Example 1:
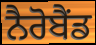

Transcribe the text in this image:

ਨੈਰੋਬੈਂਡ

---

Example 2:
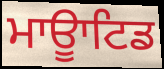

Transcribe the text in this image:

ਮਾਊਾਟਿਡ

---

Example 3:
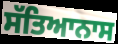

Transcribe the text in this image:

ਸੱਤਿਆਨਾਸ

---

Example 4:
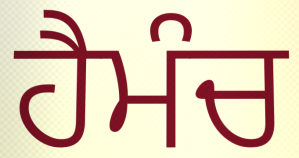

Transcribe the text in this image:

ਹੈਮੰਚ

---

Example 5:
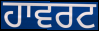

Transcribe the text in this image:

ਹਾਵਰਟ